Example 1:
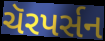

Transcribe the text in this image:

ચૅરપર્સન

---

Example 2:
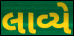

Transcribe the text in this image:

લાવ્યે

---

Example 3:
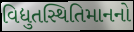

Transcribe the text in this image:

વિદ્યુતસ્થિતિમાનનો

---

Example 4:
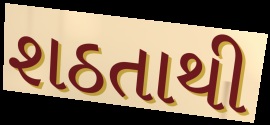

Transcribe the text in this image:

શઠતાથી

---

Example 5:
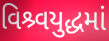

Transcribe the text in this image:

વિશ્ર્વયુદ્ધમાં